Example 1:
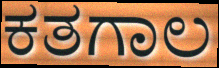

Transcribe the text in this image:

ಕತಗಾಲ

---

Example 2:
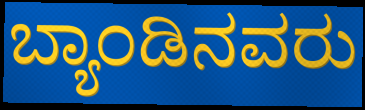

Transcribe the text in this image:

ಬ್ಯಾಂಡಿನವರು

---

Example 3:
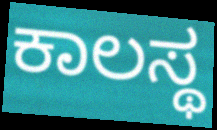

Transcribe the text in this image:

ಕಾಲಸ್ಥ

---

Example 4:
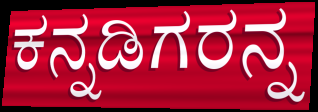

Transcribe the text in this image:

ಕನ್ನಡಿಗರನ್ನ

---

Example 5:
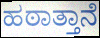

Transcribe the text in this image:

ಹಠಾತ್ತಾನೆ